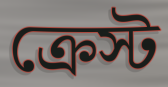
ক্রেস্ট